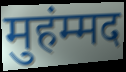
मुहंम्मद